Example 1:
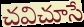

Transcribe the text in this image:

చవిచూసే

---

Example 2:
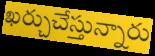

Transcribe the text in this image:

ఖర్చుచేస్తున్నారు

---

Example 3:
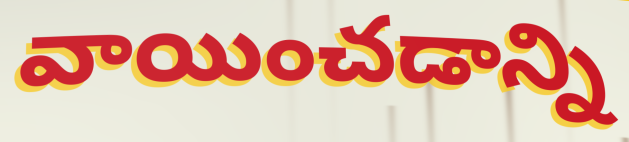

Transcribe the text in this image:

వాయించడాన్ని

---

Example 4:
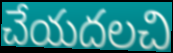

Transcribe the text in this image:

చేయదలచి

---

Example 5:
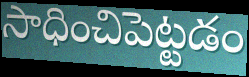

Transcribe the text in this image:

సాధించిపెట్టడం